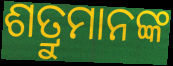
ଶତ୍ରୁମାନଙ୍କ